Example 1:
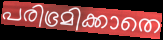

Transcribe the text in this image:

പരിഭ്രമിക്കാതെ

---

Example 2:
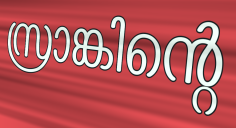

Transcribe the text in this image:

സ്രാങ്കിന്റെ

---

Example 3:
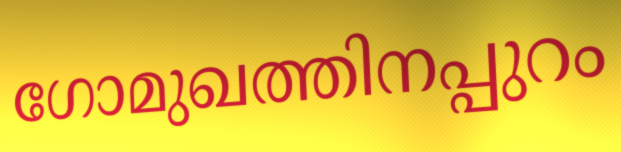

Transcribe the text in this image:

ഗോമുഖത്തിനപ്പുറം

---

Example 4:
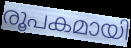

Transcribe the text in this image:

രൂപകമായി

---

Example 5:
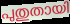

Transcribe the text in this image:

പുതുതായി